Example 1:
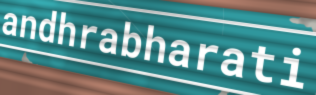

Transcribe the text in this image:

andhrabharati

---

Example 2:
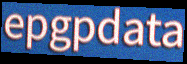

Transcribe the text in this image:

epgpdata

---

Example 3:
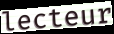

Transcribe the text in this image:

lecteur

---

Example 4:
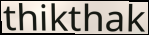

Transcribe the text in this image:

thikthak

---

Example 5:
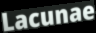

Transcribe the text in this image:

Lacunae